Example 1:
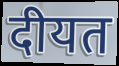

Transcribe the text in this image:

दीयत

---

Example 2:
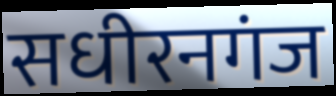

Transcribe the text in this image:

सधीरनगंज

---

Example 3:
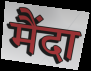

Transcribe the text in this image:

मैंदा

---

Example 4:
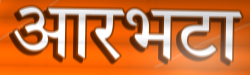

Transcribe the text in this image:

आरभटा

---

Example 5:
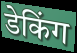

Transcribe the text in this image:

डेकिंग